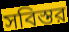
সবিস্তর